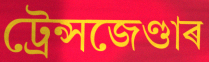
ট্ৰেন্সজেণ্ডাৰ